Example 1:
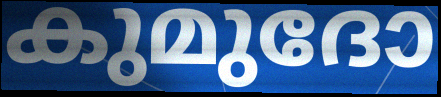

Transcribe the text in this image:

കുമുദോ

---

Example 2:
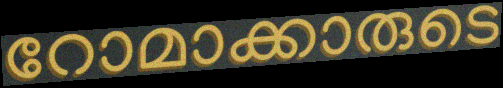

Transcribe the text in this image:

റോമാക്കാരുടെ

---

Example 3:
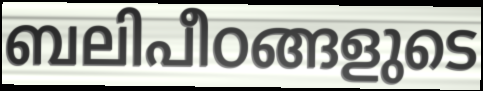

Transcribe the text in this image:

ബലിപീഠങ്ങളുടെ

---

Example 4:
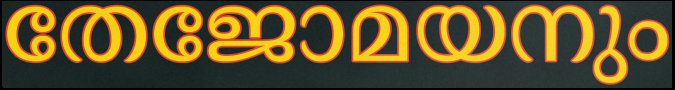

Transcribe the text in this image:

തേജോമയനും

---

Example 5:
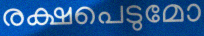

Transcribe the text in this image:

രക്ഷപെടുമോ